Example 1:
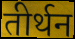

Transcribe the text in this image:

तीर्थन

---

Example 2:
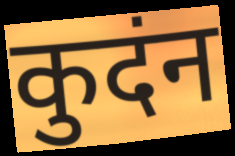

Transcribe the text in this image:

कुदंन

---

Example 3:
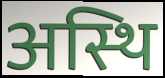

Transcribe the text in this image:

अस्थि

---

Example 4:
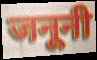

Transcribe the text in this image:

जनूनी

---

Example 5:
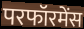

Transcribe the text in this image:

परफॉरमेंस